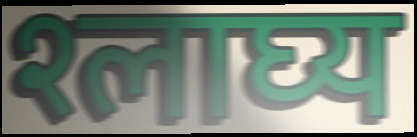
श्लाघ्य